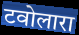
टवोलारा